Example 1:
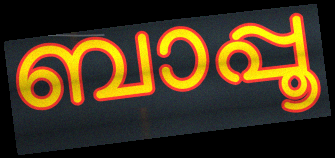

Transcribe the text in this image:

ബാപ്പൂ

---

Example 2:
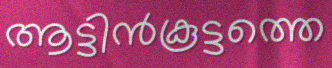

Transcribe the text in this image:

ആട്ടിൻകൂട്ടത്തെ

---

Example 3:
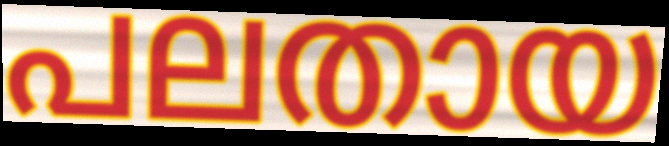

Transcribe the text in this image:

പലതായ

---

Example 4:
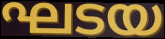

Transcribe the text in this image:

ഘടയ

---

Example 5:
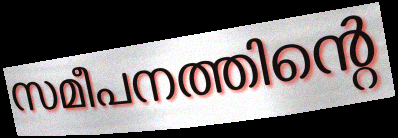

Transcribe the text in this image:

സമീപനത്തിന്റെ